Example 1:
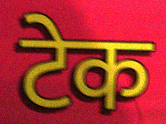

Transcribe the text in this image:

टेक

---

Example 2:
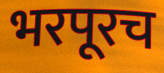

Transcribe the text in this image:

भरपूरच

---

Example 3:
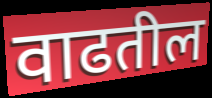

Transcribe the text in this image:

वाढतील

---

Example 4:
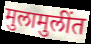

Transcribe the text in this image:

मुलामुलींत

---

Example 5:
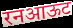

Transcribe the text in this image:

रनआऊट